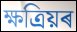
ক্ষত্ৰিয়ৰ